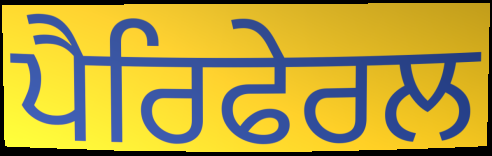
ਪੈਰਿਫੇਰਲ